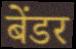
बेंडर